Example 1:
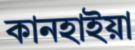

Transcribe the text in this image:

কানহাইয়া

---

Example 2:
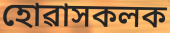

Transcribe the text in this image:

হোৱাসকলক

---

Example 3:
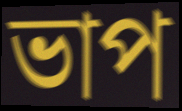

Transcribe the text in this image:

ভাপ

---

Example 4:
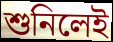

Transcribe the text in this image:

শুনিলেই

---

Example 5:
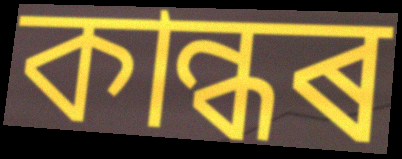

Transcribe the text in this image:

কান্ধৰ